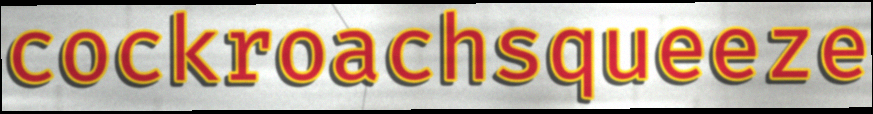
cockroachsqueeze